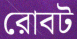
রোবট